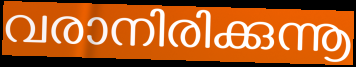
വരാനിരിക്കുന്നൂ